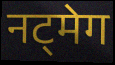
नट्मेग